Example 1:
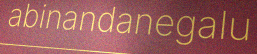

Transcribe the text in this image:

abinandanegalu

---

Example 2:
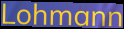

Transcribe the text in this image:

Lohmann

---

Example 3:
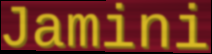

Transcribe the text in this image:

Jamini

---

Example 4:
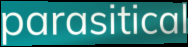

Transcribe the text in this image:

parasitical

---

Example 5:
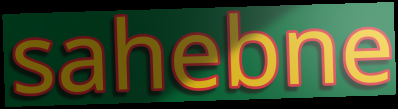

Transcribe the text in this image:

sahebne